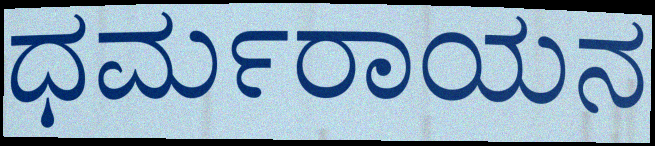
ಧರ್ಮರಾಯನ